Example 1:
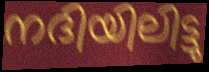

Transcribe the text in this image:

നദിയിലിട്ടു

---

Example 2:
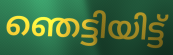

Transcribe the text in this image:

ഞെട്ടിയിട്ട്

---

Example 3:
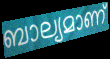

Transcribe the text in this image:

ബാല്യമാണ്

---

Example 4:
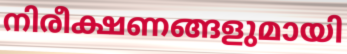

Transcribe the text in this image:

നിരീക്ഷണങ്ങളുമായി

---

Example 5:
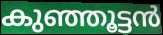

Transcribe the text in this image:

കുഞ്ഞൂട്ടൻ